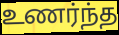
உணர்ந்த